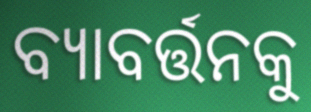
ବ୍ୟାବର୍ତ୍ତନକୁ